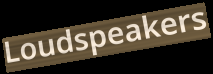
Loudspeakers